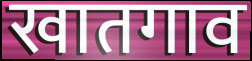
खातगाव